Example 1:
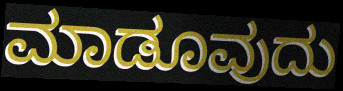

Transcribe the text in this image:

ಮಾಡೂವುದು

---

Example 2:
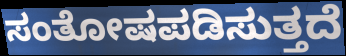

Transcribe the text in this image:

ಸಂತೋಷಪಡಿಸುತ್ತದೆ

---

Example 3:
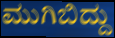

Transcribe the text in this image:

ಮುಗಿಬಿದ್ದು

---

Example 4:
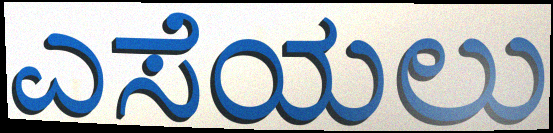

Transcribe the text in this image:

ಎಸೆಯಲು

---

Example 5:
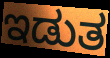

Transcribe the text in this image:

ಇಡುತ